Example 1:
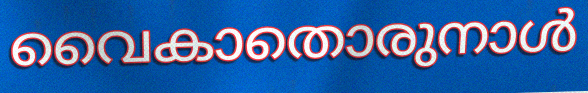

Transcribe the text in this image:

വൈകാതൊരുനാൾ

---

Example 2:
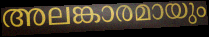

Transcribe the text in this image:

അലങ്കാരമായും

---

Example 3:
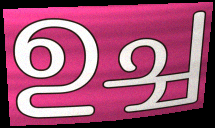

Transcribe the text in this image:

ഉച്ച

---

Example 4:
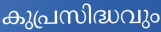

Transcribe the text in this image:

കുപ്രസിദ്ധവും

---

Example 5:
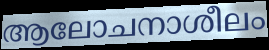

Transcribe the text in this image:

ആലോചനാശീലം